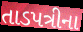
તાડપત્રીના